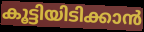
കൂട്ടിയിടിക്കാൻ